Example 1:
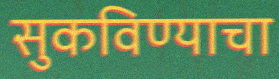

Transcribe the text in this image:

सुकविण्याचा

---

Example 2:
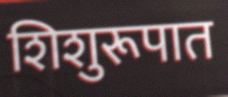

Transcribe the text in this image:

शिशुरूपात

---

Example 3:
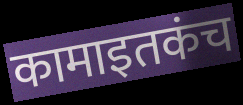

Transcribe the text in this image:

कामाइतकंच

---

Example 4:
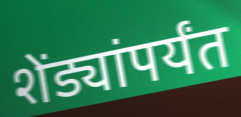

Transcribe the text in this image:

शेंड्यांपर्यंत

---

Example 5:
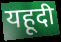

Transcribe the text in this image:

यहूदी